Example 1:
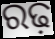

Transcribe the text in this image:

ରଢ଼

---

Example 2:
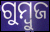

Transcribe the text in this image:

ଗୁମ୍ବୁଜ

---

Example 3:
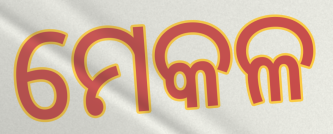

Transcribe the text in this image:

ମେକଳ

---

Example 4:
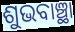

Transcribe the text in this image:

ଶୁଭବାଞ୍ଛା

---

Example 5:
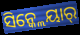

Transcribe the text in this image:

ସିନ୍କ୍ଲେୟାର୍